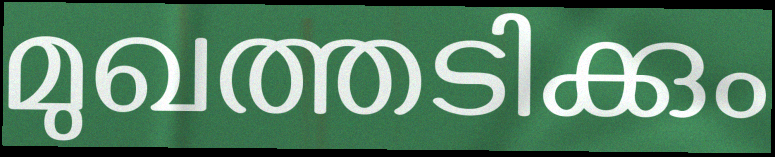
മുഖത്തടിക്കും